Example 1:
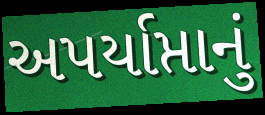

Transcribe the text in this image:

અપર્યાપ્તાનું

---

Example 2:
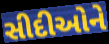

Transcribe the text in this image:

સીદીઓને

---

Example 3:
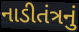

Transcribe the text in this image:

નાડીતંત્રનું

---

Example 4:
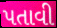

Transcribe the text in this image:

પતાવી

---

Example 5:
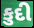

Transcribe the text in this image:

કુદી